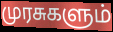
முரசுகளும்